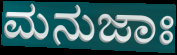
ಮನುಜಾಃ